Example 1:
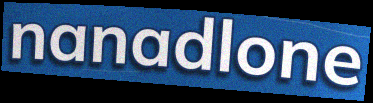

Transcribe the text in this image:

nanadlone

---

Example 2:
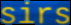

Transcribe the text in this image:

sirs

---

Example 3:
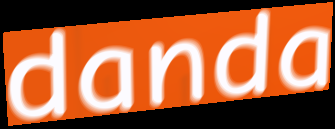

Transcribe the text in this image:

danda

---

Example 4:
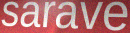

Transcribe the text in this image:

sarave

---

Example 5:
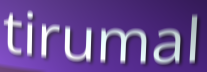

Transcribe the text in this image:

tirumal